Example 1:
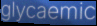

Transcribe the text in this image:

glycaemic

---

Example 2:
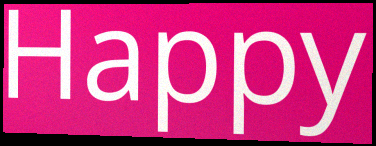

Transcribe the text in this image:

Happy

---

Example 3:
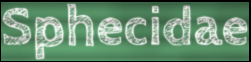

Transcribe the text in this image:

Sphecidae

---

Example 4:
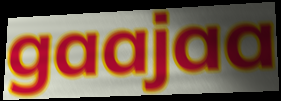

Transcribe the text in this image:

gaajaa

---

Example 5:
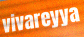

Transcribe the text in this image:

vivareyya